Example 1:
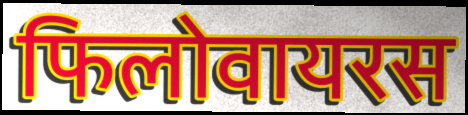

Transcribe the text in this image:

फिलोवायरस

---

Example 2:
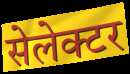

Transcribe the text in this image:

सेलेक्टर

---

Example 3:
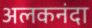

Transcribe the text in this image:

अलकनंदा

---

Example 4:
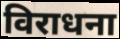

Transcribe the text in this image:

विराधना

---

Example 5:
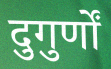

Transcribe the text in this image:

दुगुर्णों